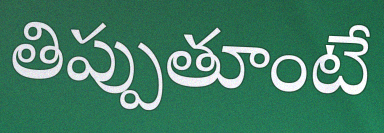
తిప్పుతూంటే